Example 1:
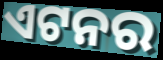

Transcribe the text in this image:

ଏଟନର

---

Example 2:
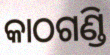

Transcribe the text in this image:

କାଠଗଣ୍ଡି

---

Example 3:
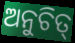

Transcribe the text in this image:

ଅନୁଚିତ୍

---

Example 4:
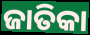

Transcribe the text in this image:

ଜାତିକା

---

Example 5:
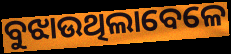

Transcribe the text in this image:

ବୁଝାଉଥିଲାବେଳେ